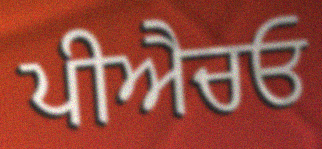
ਪੀਐਚਓ